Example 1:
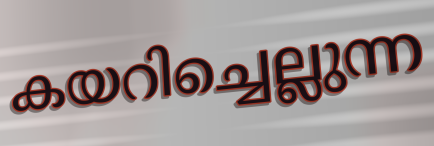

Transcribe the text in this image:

കയറിച്ചെല്ലുന്ന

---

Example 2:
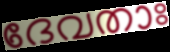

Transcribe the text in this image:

ദേവതാഃ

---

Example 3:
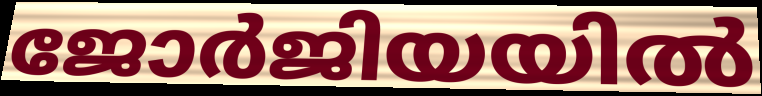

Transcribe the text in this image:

ജോർജിയയിൽ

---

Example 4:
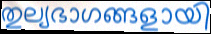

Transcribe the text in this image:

തുല്യഭാഗങ്ങളായി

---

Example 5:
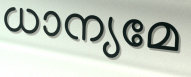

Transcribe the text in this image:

ധാന്യമേ